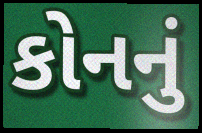
કોનનું